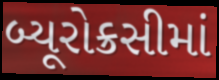
બ્યૂરોક્રસીમાં